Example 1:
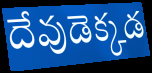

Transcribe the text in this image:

దేవుడెక్కడ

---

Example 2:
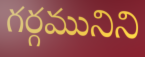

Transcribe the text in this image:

గర్గమునిని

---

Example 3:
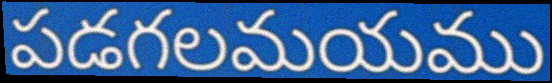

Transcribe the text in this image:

పడగలమయము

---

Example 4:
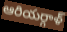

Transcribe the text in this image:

ఆరియర్గాళ్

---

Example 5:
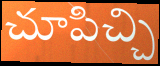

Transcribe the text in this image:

చూపిచ్చి